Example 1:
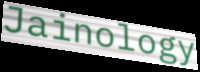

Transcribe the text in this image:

Jainology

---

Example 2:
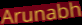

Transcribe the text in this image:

Arunabh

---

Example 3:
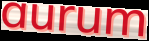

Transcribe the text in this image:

aurum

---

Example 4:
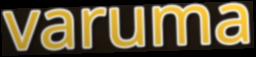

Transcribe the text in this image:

varuma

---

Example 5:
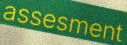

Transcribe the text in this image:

assesment